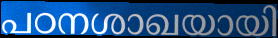
പഠനശാഖയായി